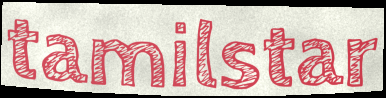
tamilstar